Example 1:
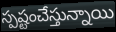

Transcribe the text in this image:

స్పష్టంచేస్తున్నాయి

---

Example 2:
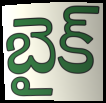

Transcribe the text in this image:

బైక్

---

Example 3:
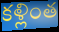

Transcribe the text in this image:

కళ్లింత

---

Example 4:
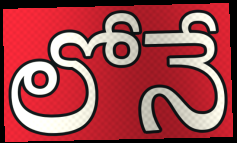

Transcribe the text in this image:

లోనే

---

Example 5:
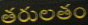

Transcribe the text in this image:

తరులతం